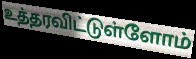
உத்தரவிட்டுள்ளோம்